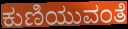
ಕುಣಿಯುವಂತೆ